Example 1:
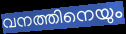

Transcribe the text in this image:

വനത്തിനെയും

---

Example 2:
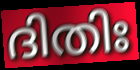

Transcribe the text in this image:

ദിതിഃ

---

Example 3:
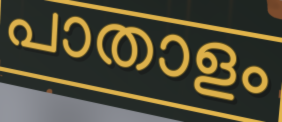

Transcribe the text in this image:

പാതാളം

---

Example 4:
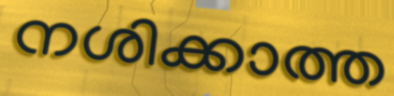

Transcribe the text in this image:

നശിക്കാത്ത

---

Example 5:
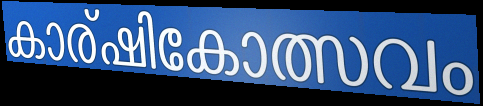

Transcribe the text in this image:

കാര്ഷികോത്സവം